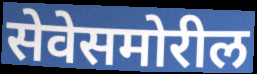
सेवेसमोरील